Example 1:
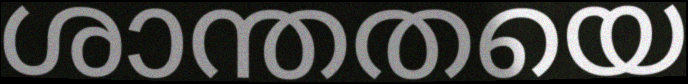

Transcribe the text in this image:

ശാന്തതയെ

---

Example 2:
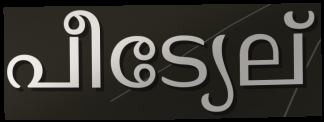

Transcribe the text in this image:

പീട്യേല്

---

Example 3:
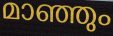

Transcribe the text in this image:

മാഞ്ഞും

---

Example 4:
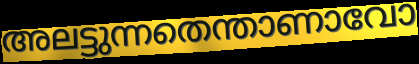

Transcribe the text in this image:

അലട്ടുന്നതെന്താണാവോ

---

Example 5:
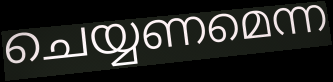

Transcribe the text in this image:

ചെയ്യണമെന്ന